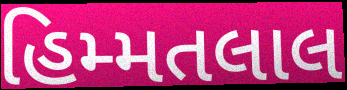
હિમ્મતલાલ